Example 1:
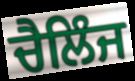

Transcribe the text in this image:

ਚੈਲਿੰਜ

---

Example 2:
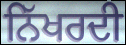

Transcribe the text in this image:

ਨਿੱਖਰਦੀ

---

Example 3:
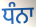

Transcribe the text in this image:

ਧੰਨਾ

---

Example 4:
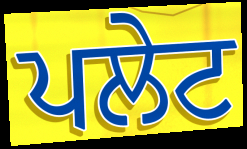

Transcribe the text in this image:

ਪਲੇਟ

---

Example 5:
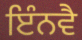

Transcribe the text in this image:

ਇੰਨਵੈ